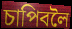
চাপিবলৈ